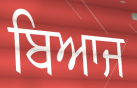
ਬਿਆਜ